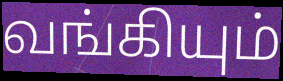
வங்கியும்